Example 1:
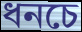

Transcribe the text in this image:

ধনচে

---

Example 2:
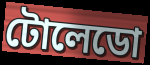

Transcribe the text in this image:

টোলেডো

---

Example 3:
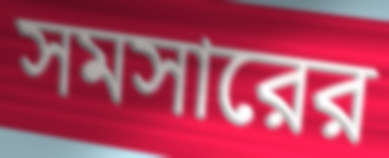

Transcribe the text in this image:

সমসারের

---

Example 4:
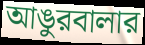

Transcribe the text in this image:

আঙুরবালার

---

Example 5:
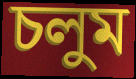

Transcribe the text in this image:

চলুম